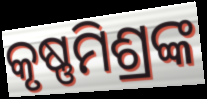
କୃଷ୍ଣମିଶ୍ରଙ୍କ